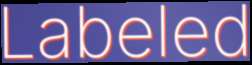
Labeled